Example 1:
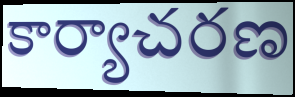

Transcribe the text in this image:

కార్యాచరణ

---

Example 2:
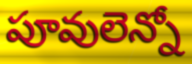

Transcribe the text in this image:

పూవులెన్నో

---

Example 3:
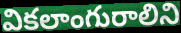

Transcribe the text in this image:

వికలాంగురాలిని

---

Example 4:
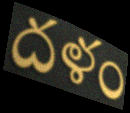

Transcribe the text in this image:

దళం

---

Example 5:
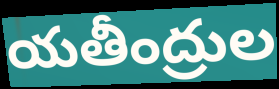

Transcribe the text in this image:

యతీంద్రుల